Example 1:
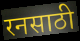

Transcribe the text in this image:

रनसाठी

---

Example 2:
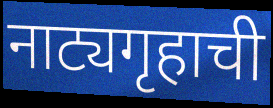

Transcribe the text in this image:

नाट्यगृहाची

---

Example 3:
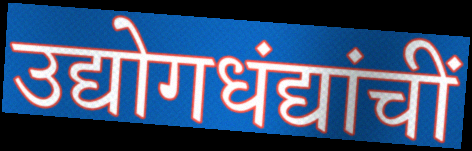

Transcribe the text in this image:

उद्योगधंद्यांचीं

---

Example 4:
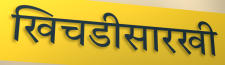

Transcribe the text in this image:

खिचडीसारखी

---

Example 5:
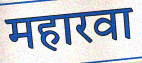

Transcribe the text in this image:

महारवा